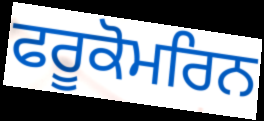
ਫਰੂਕੋਮਰਿਨ